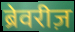
ब्रेवरीज़